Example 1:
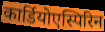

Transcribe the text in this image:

कार्डियोएस्पिरिन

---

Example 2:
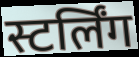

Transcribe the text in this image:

स्‍टर्लिंग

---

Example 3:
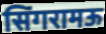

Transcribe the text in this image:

सिंगरामऊ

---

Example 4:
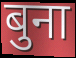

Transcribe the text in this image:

बुना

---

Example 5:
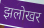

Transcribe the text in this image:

झलोखर